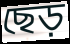
ছেড়